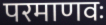
परमाणवः